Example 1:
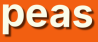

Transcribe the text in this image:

peas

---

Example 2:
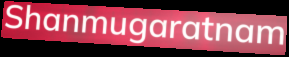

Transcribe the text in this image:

Shanmugaratnam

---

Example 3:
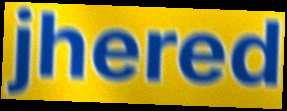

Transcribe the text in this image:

jhered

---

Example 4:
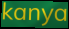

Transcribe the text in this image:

kanya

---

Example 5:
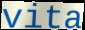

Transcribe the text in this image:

vita